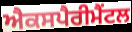
ਐਕਸਪੈਰੀਮੈਂਟਲ